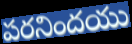
పరనిందయు